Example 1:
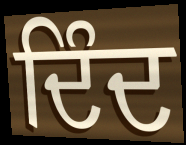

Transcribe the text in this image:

ਦਿੰਦ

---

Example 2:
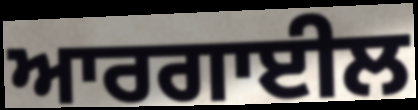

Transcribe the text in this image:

ਆਰਗਾਈਲ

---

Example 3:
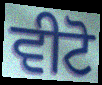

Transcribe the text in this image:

ਵੀਟੋ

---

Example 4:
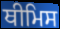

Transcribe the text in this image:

ਥੀਮਿਸ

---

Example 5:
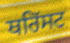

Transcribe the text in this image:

ਥਰਿੱਸਟ